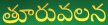
తూరువలన